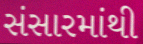
સંસારમાંથી